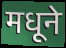
मधूने